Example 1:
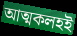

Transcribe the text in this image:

আত্মকলহই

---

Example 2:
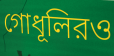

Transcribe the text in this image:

গোধূলিরও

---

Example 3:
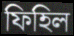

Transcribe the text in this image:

ফিহিল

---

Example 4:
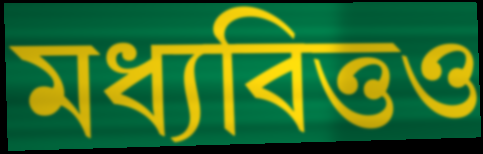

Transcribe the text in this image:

মধ্যবিত্তও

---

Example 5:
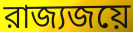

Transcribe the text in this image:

রাজ্যজয়ে